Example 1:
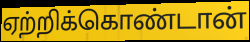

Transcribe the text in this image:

ஏற்றிக்கொண்டான்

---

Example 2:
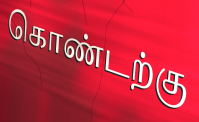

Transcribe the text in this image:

கொண்டற்கு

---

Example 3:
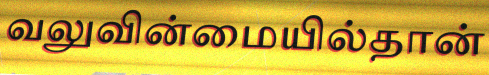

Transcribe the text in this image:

வலுவின்மையில்தான்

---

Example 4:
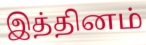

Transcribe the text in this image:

இத்தினம்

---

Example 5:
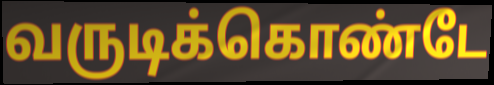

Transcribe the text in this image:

வருடிக்கொண்டே